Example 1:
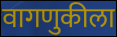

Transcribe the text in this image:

वागणुकीला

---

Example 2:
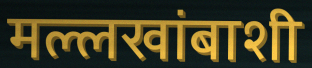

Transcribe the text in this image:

मल्लखांबाशी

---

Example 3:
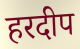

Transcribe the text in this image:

हरदीप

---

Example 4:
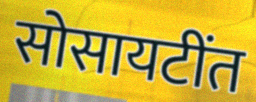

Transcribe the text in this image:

सोसायटींत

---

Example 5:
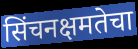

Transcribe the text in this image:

सिंचनक्षमतेचा